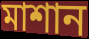
মাশান